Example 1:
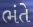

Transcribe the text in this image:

ભંતે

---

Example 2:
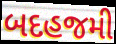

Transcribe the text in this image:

બદહજમી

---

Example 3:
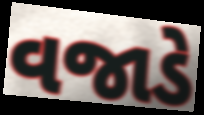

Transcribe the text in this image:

વજાડે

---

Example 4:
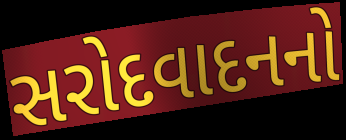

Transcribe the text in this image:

સરોદવાદનનો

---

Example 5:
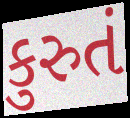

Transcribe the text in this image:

કુરુતં